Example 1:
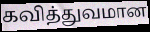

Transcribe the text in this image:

கவித்துவமான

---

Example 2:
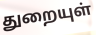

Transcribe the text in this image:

துறையுள்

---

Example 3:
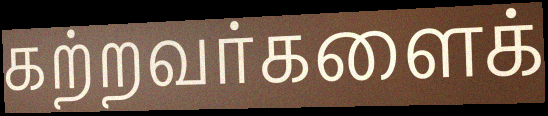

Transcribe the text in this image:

கற்றவர்களைக்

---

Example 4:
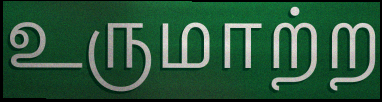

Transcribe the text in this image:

உருமாற்ற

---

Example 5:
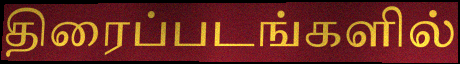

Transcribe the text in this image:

திரைப்படங்களில்